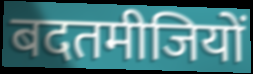
बदतमीजियों